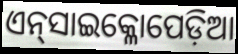
ଏନ୍‌ସାଇକ୍ଳୋପେଡ଼ିଆ